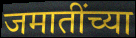
जमातींच्या